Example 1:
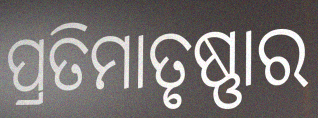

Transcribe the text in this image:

ପ୍ରତିମାତୃଷ୍ଣାର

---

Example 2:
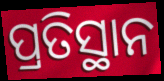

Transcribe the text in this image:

ପ୍ରତିସ୍ଥାନ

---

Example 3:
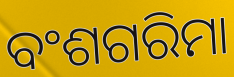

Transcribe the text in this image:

ବଂଶଗରିମା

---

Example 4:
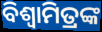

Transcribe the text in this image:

ବିଶ୍ବାମିତ୍ରଙ୍କ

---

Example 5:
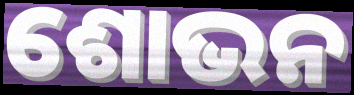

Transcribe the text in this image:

ଶୋଭନ